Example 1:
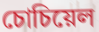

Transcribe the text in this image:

চোচিয়েল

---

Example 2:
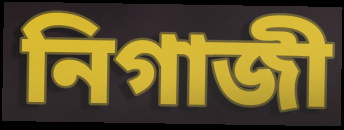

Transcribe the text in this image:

নিগাজী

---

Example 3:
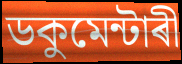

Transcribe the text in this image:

ডকুমেন্টাৰী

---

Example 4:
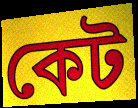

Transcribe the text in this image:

কেট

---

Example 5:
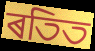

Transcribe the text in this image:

ৰতিত